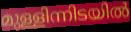
മുള്ളിന്നിടയിൽ